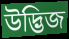
উদ্ভিজ